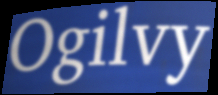
Ogilvy